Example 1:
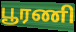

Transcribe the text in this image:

பூரணி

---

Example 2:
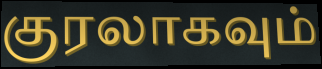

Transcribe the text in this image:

குரலாகவும்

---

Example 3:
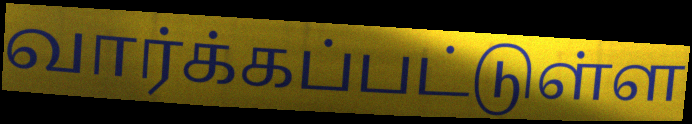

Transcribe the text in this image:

வார்க்கப்பட்டுள்ள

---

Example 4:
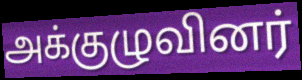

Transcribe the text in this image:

அக்குழுவினர்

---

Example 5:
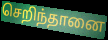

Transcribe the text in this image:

செறிந்தானை